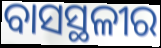
ବାସସ୍ଥଳୀର